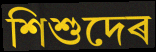
শিশুদেৰ